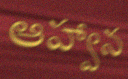
ఆహ్వాన